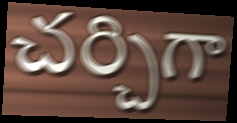
చర్చిగా